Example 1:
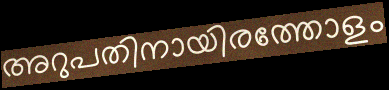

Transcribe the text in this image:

അറുപതിനായിരത്തോളം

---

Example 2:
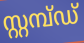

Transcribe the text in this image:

സ്റ്റമ്പ്ഡ്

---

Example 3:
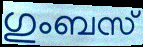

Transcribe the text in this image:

ഗുംബസ്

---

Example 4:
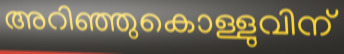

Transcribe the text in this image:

അറിഞ്ഞുകൊള്ളുവിന്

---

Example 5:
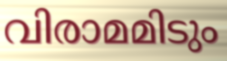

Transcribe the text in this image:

വിരാമമിടും